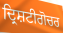
ਦ੍ਰਿਸ਼ਟੀਗੋਚਰ